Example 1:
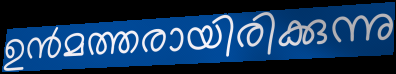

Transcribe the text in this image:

ഉൻമത്തരായിരിക്കുന്നു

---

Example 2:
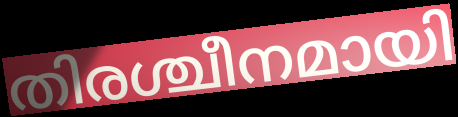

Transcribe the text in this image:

തിരശ്ചീനമായി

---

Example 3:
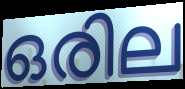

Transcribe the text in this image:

ഒരില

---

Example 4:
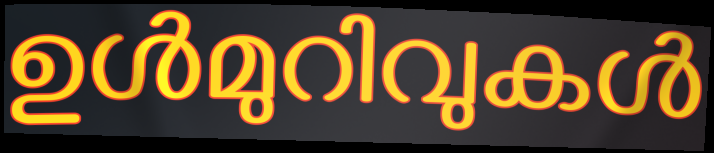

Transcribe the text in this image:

ഉൾമുറിവുകൾ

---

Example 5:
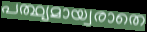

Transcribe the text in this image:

പത്ഥ്യമായ്വരാതെ